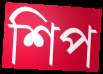
শিপ